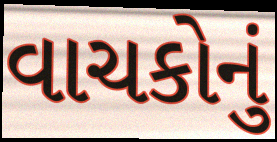
વાચકોનું